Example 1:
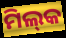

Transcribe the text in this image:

ମିଲ୍‌କ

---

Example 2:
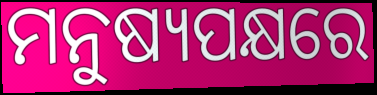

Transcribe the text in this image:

ମନୁଷ୍ୟପକ୍ଷରେ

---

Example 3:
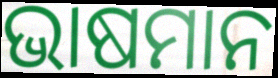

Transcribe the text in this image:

ଭାଷମାନ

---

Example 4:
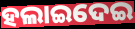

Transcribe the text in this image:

ହଲାଇଦେଇ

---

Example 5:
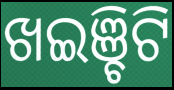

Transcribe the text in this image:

ଖଇଞ୍ଚିଟି